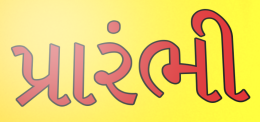
પ્રારંભી